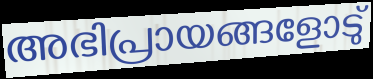
അഭിപ്രായങ്ങളോടു്